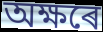
অক্ষৰে